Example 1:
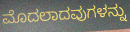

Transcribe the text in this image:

ಮೊದಲಾದವುಗಳನ್ನು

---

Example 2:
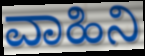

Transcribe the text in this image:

ವಾಹಿನಿ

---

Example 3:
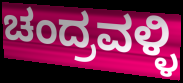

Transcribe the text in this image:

ಚಂದ್ರವಳ್ಳಿ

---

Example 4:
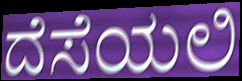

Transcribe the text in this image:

ದೆಸೆಯಲಿ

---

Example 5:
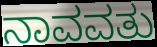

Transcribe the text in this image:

ನಾವವತು